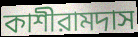
কাশীরামদাস